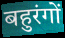
बहुरंगों